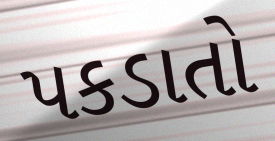
પકડાતો